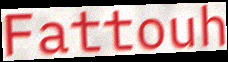
Fattouh